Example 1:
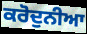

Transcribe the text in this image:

ਕਰੋਦੁਨੀਆ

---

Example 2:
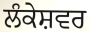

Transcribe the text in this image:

ਲੰਕੇਸ਼ਵਰ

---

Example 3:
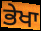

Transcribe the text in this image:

ਭੇਖਾ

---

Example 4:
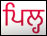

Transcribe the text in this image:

ਪਿਲ੍ਹ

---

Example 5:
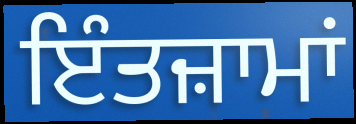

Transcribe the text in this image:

ਇੰਤਜ਼ਾਮਾਂ